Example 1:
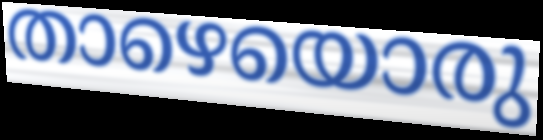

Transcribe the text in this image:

താഴെയൊരു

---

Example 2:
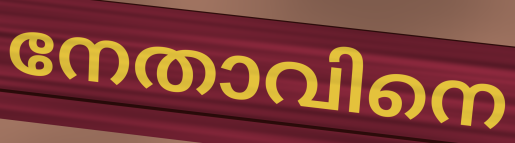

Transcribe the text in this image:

നേതാവിനെ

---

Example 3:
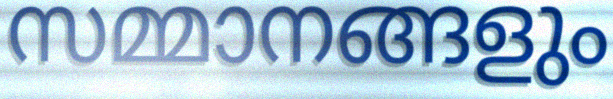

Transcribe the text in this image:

സമ്മാനങ്ങളും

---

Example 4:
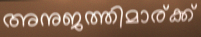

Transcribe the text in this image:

അനുജത്തിമാര്ക്ക്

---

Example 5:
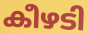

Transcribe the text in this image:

കീഴടി